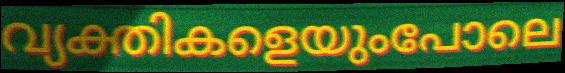
വ്യക്തികളെയുംപോലെ